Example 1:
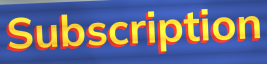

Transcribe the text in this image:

Subscription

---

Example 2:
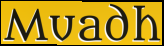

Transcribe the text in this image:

Muadh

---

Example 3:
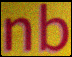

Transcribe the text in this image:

nb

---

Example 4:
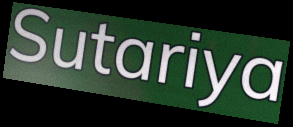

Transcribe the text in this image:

Sutariya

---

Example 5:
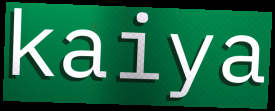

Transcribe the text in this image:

kaiya